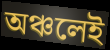
অঞ্চলেই